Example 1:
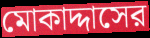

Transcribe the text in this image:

মোকাদ্দাসের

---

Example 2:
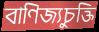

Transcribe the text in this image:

বাণিজ্যচুক্তি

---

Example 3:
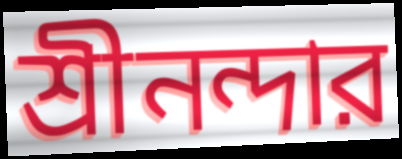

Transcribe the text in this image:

শ্রীনন্দার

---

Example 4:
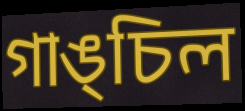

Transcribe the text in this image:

গাঙ্‌চিল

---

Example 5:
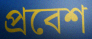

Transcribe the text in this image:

প্রবেশ